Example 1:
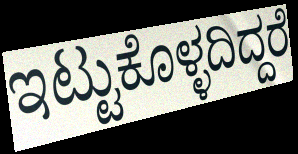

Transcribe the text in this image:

ಇಟ್ಟುಕೊಳ್ಳದಿದ್ದರೆ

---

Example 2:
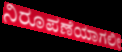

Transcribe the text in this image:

ನಿರೂಪಣೆಯಾಗಲೀ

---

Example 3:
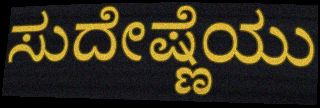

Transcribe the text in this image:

ಸುದೇಷ್ಣೆಯು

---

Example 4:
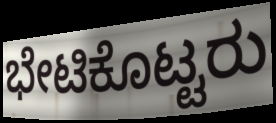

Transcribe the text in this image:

ಭೇಟಿಕೊಟ್ಟರು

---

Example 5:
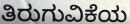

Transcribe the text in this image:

ತಿರುಗುವಿಕೆಯ